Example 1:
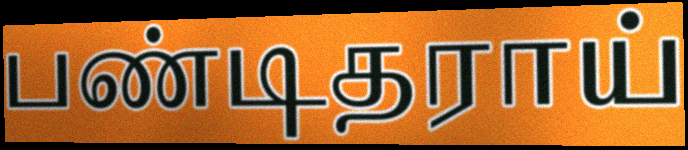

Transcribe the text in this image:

பண்டிதராய்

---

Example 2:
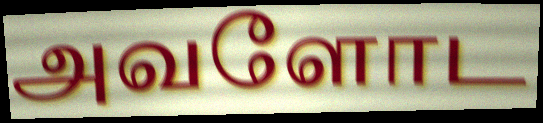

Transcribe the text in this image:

அவளோட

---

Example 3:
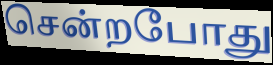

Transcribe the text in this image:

சென்றபோது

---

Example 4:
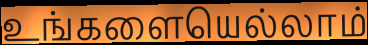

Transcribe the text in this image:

உங்களையெல்லாம்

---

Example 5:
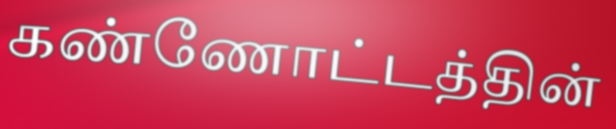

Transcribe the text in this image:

கண்ணோட்டத்தின்